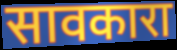
सावकारा